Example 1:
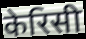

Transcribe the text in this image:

केरिसी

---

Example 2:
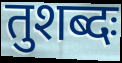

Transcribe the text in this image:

तुशब्दः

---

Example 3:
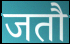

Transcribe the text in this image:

जतौ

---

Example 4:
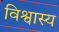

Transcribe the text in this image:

विश्वास्य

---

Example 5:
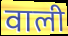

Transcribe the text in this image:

वाली